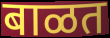
बाळत